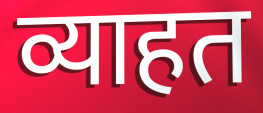
व्याहत